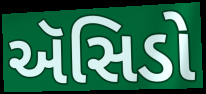
ઍસિડો